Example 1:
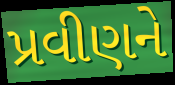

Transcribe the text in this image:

પ્રવીણને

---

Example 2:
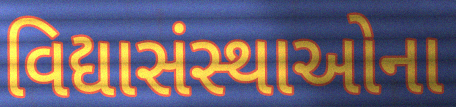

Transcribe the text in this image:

વિદ્યાસંસ્થાઓના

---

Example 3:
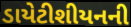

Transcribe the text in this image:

ડાયેટીશીયનની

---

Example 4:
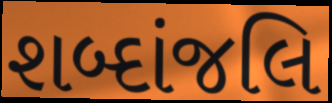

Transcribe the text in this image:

શબ્દાંજલિ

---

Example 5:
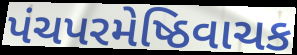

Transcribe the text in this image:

પંચપરમેષ્ઠિવાચક